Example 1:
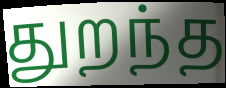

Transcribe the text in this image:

துறந்த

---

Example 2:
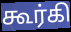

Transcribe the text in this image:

கூர்கி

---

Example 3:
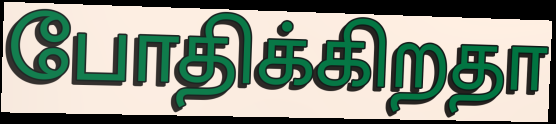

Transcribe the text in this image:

போதிக்கிறதா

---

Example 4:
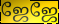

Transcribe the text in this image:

ஜேஜே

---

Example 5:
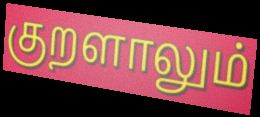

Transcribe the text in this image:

குறளாலும்